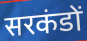
सरकंडों